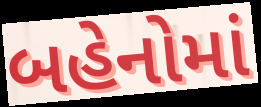
બહેનોમાં